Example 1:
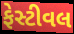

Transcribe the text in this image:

ફેસ્ટીવલ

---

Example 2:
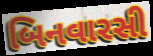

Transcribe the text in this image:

બિનવારસી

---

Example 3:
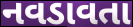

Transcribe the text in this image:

નવડાવતા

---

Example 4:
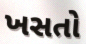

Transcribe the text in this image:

ખસતો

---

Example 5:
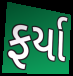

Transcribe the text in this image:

ફર્યા